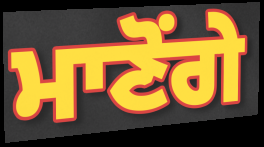
ਮਾਣੋਂਗੇ